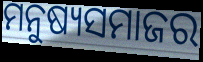
ମନୁଷ୍ୟସମାଜର